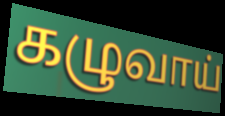
கழுவாய்